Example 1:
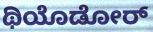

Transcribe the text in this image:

ಥಿಯೊಡೋರ್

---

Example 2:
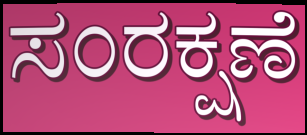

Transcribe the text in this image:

ಸಂರಕ್ಷಣೆ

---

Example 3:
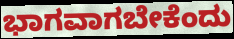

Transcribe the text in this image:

ಭಾಗವಾಗಬೇಕೆಂದು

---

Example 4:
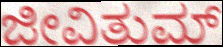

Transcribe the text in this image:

ಜೀವಿತುಮ್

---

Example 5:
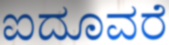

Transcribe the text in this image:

ಐದೂವರೆ